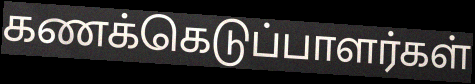
கணக்கெடுப்பாளர்கள்